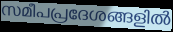
സമീപപ്രദേശങ്ങളിൽ